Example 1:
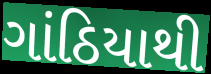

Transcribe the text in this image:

ગાંઠિયાથી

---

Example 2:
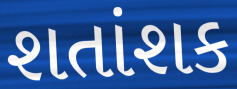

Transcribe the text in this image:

શતાંશક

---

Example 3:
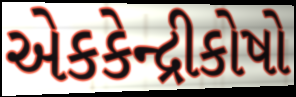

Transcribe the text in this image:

એકકેન્દ્રીકોષો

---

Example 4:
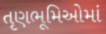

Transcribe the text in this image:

તૃણભૂમિઓમાં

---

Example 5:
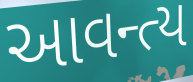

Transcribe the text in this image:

આવન્ત્ય